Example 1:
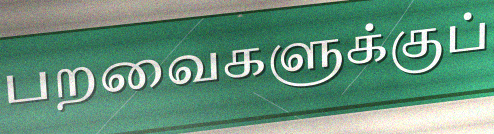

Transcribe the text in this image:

பறவைகளுக்குப்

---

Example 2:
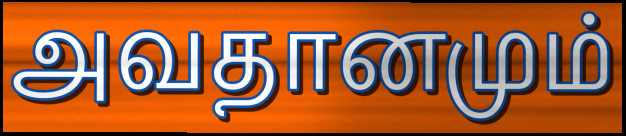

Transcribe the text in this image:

அவதானமும்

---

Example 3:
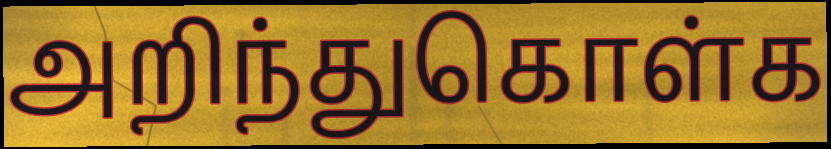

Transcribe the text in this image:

அறிந்துகொள்க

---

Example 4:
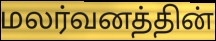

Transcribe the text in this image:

மலர்வனத்தின்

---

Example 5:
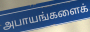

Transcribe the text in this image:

அபாயங்களைக்